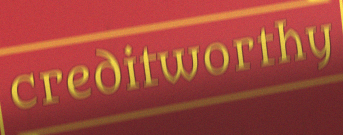
creditworthy